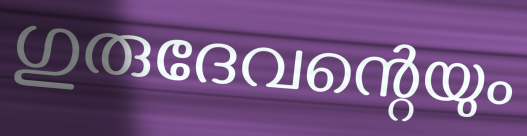
ഗുരുദേവന്റെയും